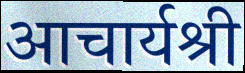
आचार्यश्री